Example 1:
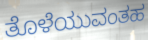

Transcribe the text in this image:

ತೊಳೆಯುವಂತಹ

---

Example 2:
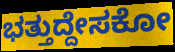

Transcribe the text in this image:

ಭತ್ತುದ್ದೇಸಕೋ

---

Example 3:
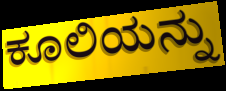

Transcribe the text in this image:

ಕೂಲಿಯನ್ನು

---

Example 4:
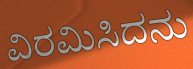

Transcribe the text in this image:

ವಿರಮಿಸಿದನು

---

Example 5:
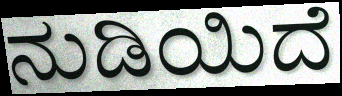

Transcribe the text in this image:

ನುಡಿಯಿದೆ